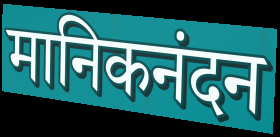
मानिकनंदन